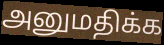
அனுமதிக்க